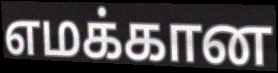
எமக்கான